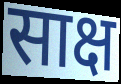
साक्ष